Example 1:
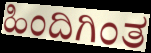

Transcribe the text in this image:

ಹಿಂದಿಗಿಂತ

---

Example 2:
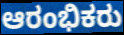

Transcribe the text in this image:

ಆರಂಭಿಕರು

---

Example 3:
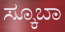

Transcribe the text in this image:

ಸ್ಕೂಬಾ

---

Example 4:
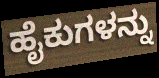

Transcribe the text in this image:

ಹೈಕುಗಳನ್ನು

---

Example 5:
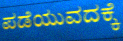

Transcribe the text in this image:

ಪಡೆಯುವದಕ್ಕೆ